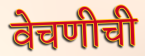
वेचणीची